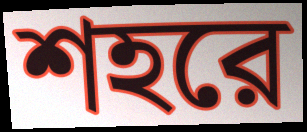
শহরে